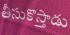
తీసుకొస్తాడు